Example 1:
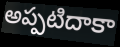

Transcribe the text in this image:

అప్పటిదాకా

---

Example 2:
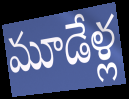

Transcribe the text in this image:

మూడేళ్ల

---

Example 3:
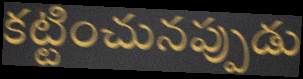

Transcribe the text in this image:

కట్టించునప్పుడు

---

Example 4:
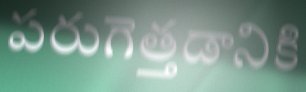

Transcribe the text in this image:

పరుగెత్తడానికి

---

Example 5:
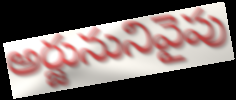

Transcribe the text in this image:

అర్జునునివైపు